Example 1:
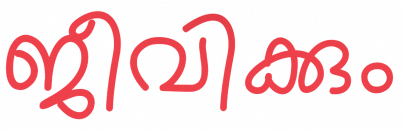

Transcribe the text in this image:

ജീവിക്കും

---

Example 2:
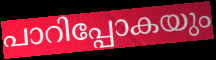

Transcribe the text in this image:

പാറിപ്പോകയും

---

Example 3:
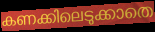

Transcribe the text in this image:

കണക്കിലെടുക്കാതെ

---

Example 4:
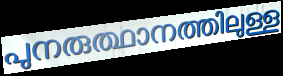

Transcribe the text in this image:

പുനരുത്ഥാനത്തിലുള്ള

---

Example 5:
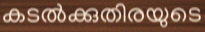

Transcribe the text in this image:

കടൽക്കുതിരയുടെ